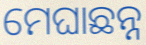
ମେଘାଛନ୍ନ